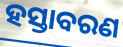
ହସ୍ତାବରଣ